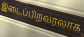
இடைப்பிறவரலாக